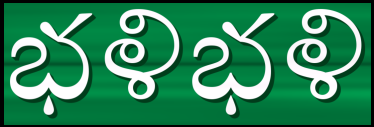
భళిభళి